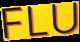
FLU